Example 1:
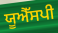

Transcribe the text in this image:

ਯੂਐੱਸਪੀ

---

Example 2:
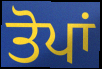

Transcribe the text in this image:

ਤੋਪਾਂ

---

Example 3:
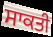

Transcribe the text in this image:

ਸਾਕਤੀ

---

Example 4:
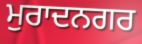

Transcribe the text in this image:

ਮੁਰਾਦਨਗਰ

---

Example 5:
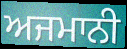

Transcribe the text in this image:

ਅਜਮਾਨੀ